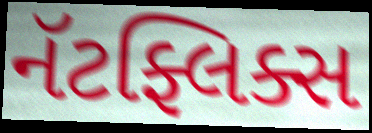
નૅટફ્લિક્સ